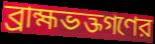
ব্রাহ্মভক্তগণের